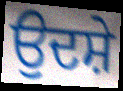
ਉਦਸ਼ੇ